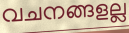
വചനങ്ങളല്ല